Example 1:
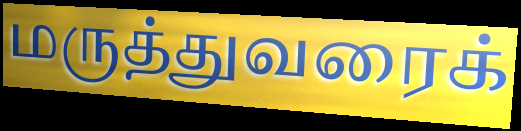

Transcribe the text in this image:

மருத்துவரைக்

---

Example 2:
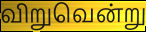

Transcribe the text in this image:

விறுவென்று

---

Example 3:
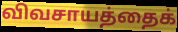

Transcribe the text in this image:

விவசாயத்தைக்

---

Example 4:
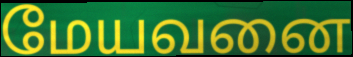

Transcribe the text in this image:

மேயவனை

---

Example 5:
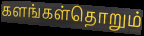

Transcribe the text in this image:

களங்கள்தொறும்